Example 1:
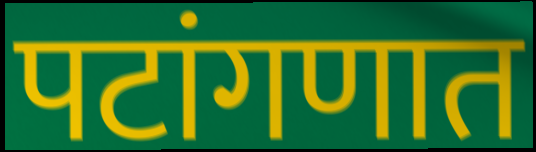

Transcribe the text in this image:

पटांगणात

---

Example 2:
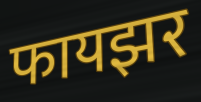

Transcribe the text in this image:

फायझर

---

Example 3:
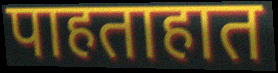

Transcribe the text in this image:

पाहताहात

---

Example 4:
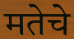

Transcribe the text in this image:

मतेचे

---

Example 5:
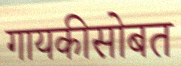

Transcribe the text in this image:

गायकीसोबत